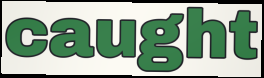
caught